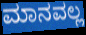
ಮಾನವಲ್ಲ